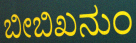
ಬೀಬಿಖನುಂ